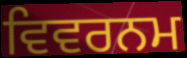
ਵਿਵਰਨਮ